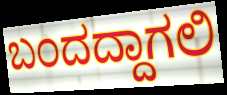
ಬಂದದ್ದಾಗಲಿ